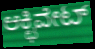
ಆಕ್ಟಿವೇಟ್